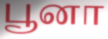
பூனா